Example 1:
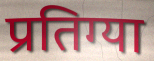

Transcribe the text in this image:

प्रतिग्या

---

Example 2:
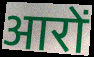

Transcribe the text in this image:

आरों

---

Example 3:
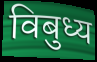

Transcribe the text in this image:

विबुध्य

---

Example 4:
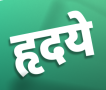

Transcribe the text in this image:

हृदये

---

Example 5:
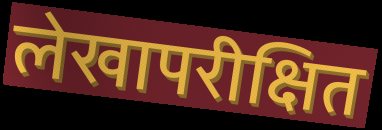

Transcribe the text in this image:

लेखापरीक्षित